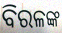
ବିରଳଙ୍କ